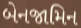
બેનજામિન